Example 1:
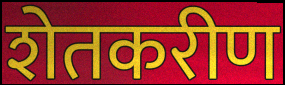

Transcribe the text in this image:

शेतकरीण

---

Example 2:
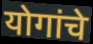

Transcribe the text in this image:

योगांचे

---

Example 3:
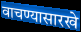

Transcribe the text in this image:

वाचण्यासारखे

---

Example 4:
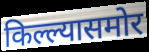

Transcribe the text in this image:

किल्ल्यासमोर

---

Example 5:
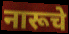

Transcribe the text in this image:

नारूचे